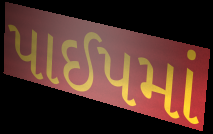
પાઈપમાં